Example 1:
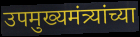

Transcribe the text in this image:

उपमुख्यमंत्र्यांच्या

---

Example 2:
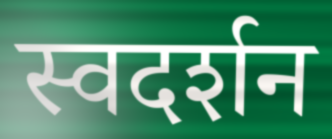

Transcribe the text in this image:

स्वदर्शन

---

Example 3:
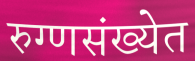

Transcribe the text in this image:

रुग्णसंख्येत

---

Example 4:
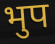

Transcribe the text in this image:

भुप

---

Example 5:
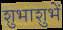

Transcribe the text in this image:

शुभाशुभें